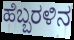
ಹೆಬ್ಬರಳಿನ